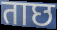
ताछ